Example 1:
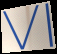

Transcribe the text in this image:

VI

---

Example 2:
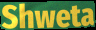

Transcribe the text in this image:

Shweta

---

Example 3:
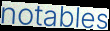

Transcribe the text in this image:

notables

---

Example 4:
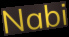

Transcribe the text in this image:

Nabi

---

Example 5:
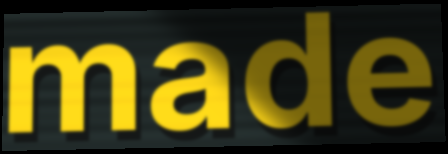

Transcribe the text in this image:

made